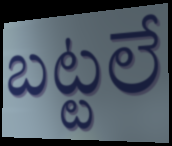
బట్టలే